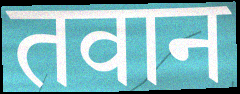
तवान